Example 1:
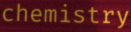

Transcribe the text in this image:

chemistry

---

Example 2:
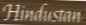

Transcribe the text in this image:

Hindustan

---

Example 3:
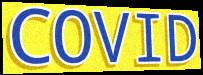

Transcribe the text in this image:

COVID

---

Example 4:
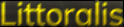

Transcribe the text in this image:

Littoralis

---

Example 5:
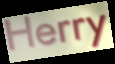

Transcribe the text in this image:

Herry